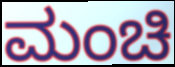
ಮಂಚಿ